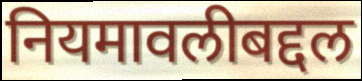
नियमावलीबद्दल